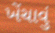
ખેંચાવું